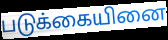
படுக்கையினை